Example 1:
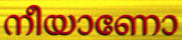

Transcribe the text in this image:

നീയാണോ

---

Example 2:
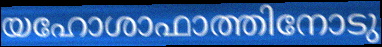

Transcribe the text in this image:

യഹോശാഫാത്തിനോടു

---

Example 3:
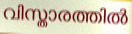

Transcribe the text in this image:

വിസ്താരത്തിൽ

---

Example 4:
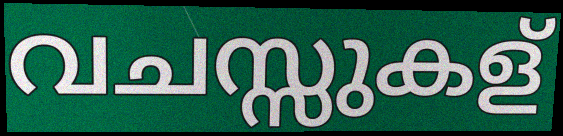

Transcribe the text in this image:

വചസ്സുകള്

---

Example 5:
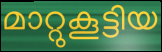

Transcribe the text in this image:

മാറ്റുകൂട്ടിയ